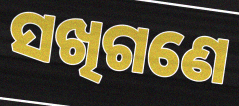
ସଖିଗଣେ